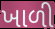
ખાળી